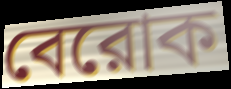
বেরোক